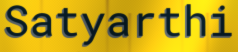
Satyarthi